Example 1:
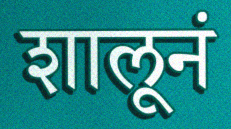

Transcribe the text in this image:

शालूनं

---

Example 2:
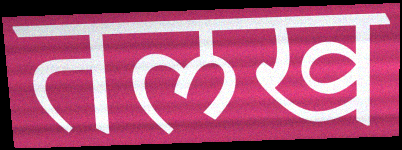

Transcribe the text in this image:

तलख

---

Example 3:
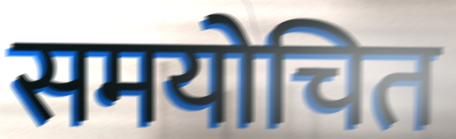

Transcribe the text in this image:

समयोचित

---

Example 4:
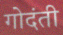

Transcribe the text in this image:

गोदंती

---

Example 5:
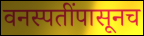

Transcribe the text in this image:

वनस्पतींपासूनच